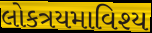
લોકત્રયમાવિશ્ય